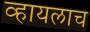
व्हायलाच